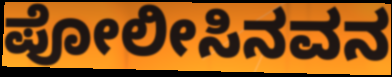
ಪೋಲೀಸಿನವನ